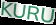
KURU